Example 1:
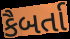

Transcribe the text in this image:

કૈબર્તા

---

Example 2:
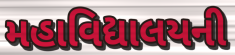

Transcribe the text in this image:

મહાવિદ્યાલયની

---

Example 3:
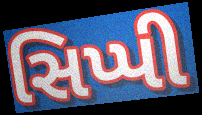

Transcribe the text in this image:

સિપ્પી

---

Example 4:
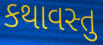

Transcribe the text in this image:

કથાવસ્તુ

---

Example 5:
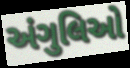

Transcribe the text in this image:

અંગુલિઓ